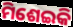
ମିଶେଇକି